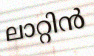
ലാറ്റിൻ